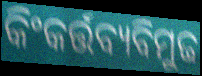
କିଂକର୍ତ୍ତବ୍ଯବିମୁଢ